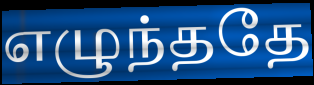
எழுந்ததே